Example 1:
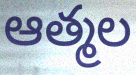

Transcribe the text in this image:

ఆత్మల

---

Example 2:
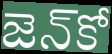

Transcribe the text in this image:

జెన్‌కో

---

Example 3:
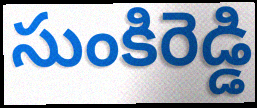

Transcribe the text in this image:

సుంకిరెడ్డి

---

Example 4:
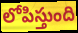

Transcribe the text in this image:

లోపిస్తుంది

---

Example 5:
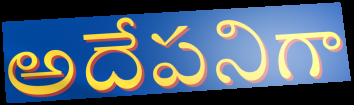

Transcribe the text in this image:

అదేపనిగా